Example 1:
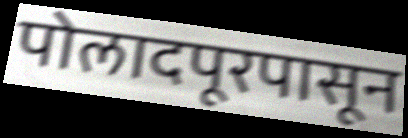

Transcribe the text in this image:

पोलादपूरपासून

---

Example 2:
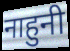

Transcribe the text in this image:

नाहुनी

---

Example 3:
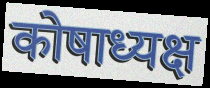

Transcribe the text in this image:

कोषाध्यक्ष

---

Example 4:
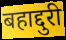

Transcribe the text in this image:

बहाद्दुरी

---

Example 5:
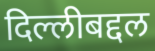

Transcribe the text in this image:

दिल्लीबद्दल